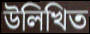
উলিখিত